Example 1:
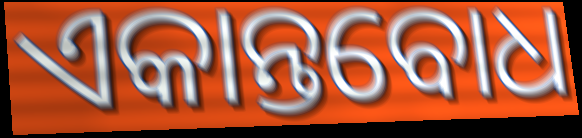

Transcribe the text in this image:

ଏକାନ୍ତବୋଧ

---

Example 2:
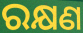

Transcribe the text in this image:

ରକ୍ଷଣ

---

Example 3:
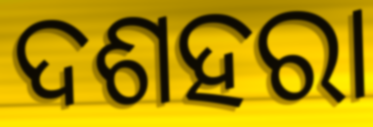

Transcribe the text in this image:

ଦଶହରା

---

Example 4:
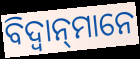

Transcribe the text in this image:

ବିଦ୍ୱାନ୍‌ମାନେ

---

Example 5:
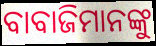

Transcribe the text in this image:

ବାବାଜିମାନଙ୍କୁ